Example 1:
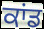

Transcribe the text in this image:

ਕਾਂਡ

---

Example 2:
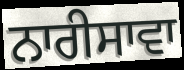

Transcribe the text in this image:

ਨਾਰੀਸਾਵਾ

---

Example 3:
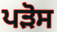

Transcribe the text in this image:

ਪੜੋਸ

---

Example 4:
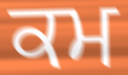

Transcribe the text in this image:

ਕਮ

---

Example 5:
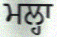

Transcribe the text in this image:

ਮਲ੍ਹਾ